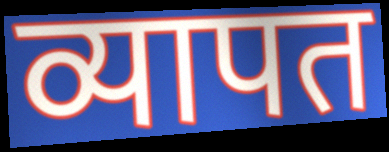
व्यापत